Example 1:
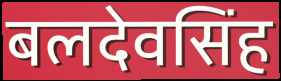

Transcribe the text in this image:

बलदेवसिंह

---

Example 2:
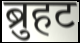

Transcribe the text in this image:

ब्रुहट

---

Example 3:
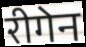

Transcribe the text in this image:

रीगेन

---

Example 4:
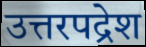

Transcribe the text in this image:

उत्तरपद्रेश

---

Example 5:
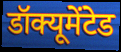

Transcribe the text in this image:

डॉक्यूमेंटेड